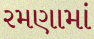
રમણામાં